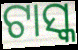
ଟାସ୍କ